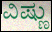
ವಿಷ್ಣು